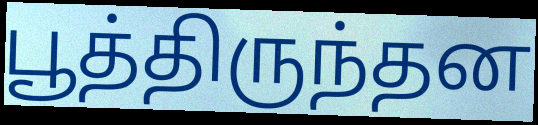
பூத்திருந்தன